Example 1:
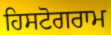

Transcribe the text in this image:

ਹਿਸਟੋਗਰਾਮ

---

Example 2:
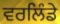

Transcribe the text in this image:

ਵਰਲਿੰਡੇ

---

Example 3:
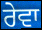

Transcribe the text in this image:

ਰੇਵਾ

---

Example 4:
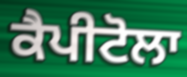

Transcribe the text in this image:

ਕੈਪੀਟੋਲਾ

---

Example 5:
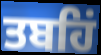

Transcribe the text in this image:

ਤਬਹਿਂ